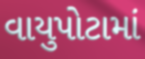
વાયુપોટામાં